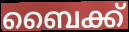
ബൈക്ക്